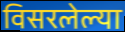
विसरलेल्या